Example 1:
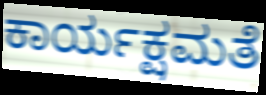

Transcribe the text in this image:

ಕಾರ್ಯಕ್ಷಮತೆ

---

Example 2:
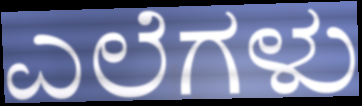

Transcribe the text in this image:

ಎಲೆಗಳು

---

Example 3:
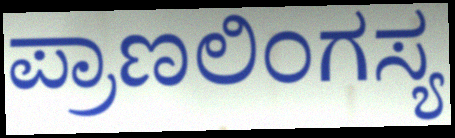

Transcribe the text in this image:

ಪ್ರಾಣಲಿಂಗಸ್ಯ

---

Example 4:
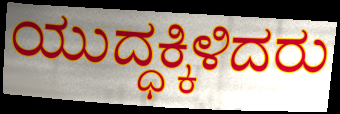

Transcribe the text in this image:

ಯುದ್ಧಕ್ಕಿಳಿದರು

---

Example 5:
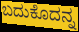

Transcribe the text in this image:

ಬದುಕೊದನ್ನ